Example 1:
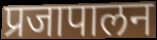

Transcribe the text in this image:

प्रजापालन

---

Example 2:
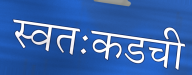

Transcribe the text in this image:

स्वतःकडची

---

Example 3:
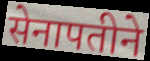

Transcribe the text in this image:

सेनापतीने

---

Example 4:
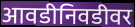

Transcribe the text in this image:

आवडीनिवडीवर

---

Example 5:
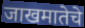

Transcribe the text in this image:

जाखमातेचे